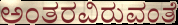
ಅಂತರವಿರುವಂತೆ